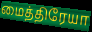
மைத்திரேயா